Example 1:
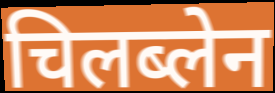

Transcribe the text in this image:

चिलब्लेन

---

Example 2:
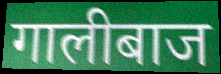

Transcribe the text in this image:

गालीबाज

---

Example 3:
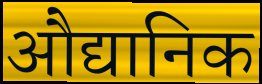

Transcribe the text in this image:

औद्यानिक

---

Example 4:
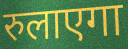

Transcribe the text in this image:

रुलाएगा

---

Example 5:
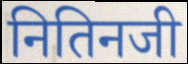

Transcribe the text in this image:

नितिनजी